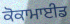
ਕੋਕਾਮਾਈਡ